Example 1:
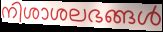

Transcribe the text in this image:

നിശാശലഭങ്ങൾ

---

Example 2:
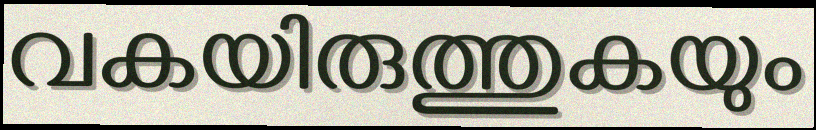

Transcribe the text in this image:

വകയിരുത്തുകയും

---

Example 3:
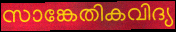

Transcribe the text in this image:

സാങ്കേതികവിദ്യ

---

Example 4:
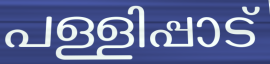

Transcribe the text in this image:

പള്ളിപ്പാട്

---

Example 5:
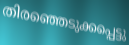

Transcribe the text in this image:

തിരഞ്ഞെടുക്കപ്പെട്ടു